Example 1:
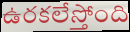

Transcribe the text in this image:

ఉరకలేస్తోంది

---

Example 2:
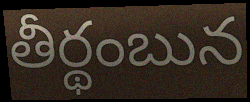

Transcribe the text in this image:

తీర్థంబున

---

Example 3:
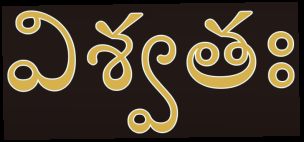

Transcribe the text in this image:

విశ్వతః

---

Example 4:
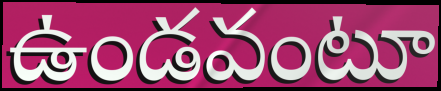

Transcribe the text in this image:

ఉండవంటూ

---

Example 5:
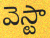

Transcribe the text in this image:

వెస్టా